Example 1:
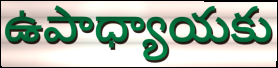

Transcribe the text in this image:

ఉపాధ్యాయకు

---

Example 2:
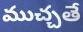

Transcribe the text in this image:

ముచ్చతే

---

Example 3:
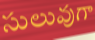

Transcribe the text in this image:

సులువుగా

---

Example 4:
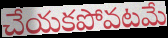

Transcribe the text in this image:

చేయకపోవటమే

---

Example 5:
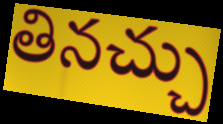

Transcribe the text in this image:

తినచ్చు